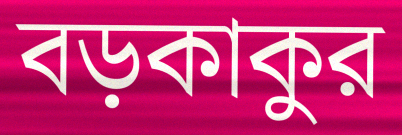
বড়কাকুর